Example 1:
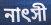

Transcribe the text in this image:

নাৎসী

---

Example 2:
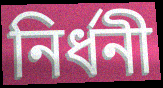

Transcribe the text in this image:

নির্ধনী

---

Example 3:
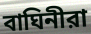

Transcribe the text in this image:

বাঘিনীরা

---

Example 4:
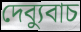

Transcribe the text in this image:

দেব্যুবাচ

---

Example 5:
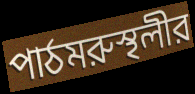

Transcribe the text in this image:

পাঠমরুস্থলীর